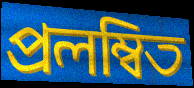
প্রলম্বিত